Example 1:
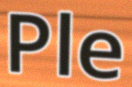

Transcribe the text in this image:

Ple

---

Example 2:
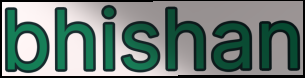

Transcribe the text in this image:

bhishan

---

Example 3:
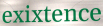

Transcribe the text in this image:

exixtence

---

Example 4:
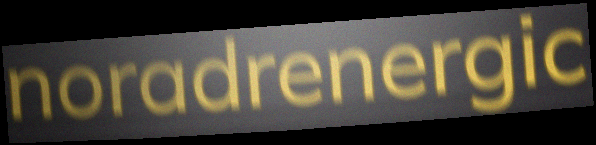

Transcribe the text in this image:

noradrenergic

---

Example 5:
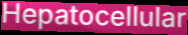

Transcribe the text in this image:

Hepatocellular